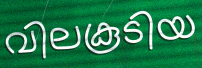
വിലകൂടിയ